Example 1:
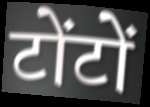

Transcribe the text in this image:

टोंटों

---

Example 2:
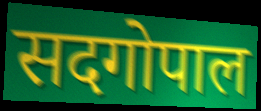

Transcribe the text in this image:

सदगोपाल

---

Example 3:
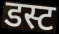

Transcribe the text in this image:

डस्ट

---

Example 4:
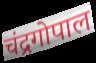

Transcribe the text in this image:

चंद्रगोपाल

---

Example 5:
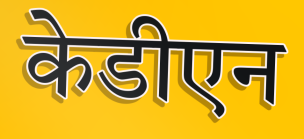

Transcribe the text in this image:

केडीएन